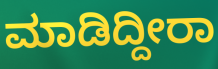
ಮಾಡಿದ್ದೀರಾ